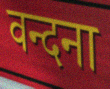
वन्दना